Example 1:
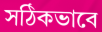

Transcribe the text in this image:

সঠিকভাবে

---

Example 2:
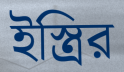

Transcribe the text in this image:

ইস্ত্রির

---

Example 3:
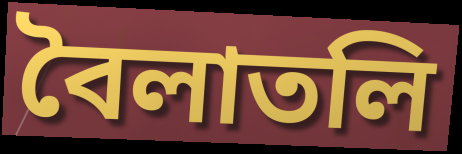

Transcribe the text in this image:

বৈলাতলি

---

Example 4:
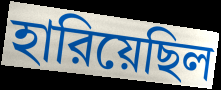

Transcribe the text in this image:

হারিয়েছিল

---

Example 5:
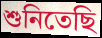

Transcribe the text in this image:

শুনিতেছি